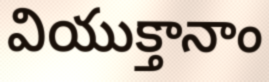
వియుక్తానాం